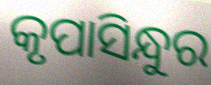
କୃପାସିନ୍ଧୁର